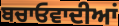
ਬਚਾਓਵਾਦੀਆਂ